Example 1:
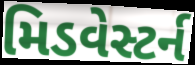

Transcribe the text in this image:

મિડવેસ્ટર્ન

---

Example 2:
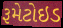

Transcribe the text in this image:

રૂમેટોઇડ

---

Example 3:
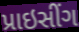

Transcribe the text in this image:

પ્રાઇસીંગ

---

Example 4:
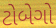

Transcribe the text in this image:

ટોબેગો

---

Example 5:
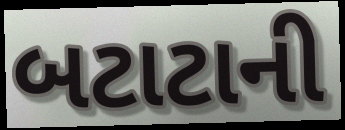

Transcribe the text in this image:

બટાટાની